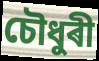
চৌধুৰী